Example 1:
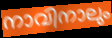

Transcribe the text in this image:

നാവിനാലും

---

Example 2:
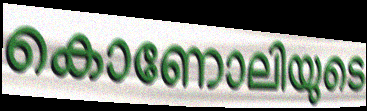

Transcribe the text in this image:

കൊണോലിയുടെ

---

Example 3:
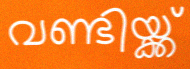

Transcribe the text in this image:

വണ്ടിയ്ക്ക്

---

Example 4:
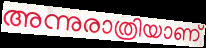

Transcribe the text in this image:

അന്നുരാത്രിയാണ്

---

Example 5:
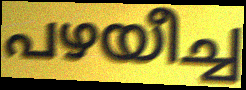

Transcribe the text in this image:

പഴയീച്ച